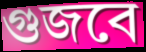
গুজবে